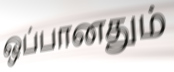
ஒப்பானதும்